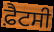
ਫ਼ੈਟਸੀ